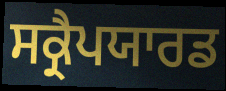
ਸਕ੍ਰੈਪਯਾਰਡ